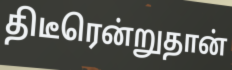
திடீரென்றுதான்